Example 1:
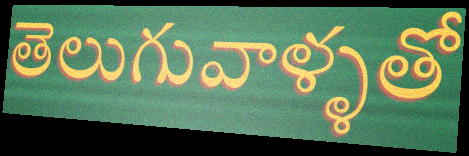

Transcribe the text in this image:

తెలుగువాళ్ళతో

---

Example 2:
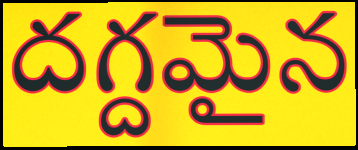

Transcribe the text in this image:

దగ్దమైన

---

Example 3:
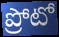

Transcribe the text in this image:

ప్రోటో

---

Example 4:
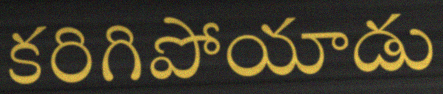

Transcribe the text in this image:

కరిగిపోయాడు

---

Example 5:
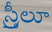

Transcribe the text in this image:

స్ర్తీలూ